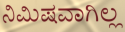
ನಿಮಿಷವಾಗಿಲ್ಲ